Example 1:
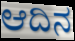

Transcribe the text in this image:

ಆದಿನ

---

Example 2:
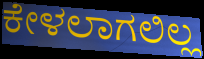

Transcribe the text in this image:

ಕೇಳಲಾಗಲಿಲ್ಲ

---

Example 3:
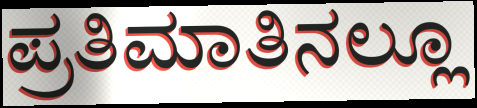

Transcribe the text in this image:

ಪ್ರತಿಮಾತಿನಲ್ಲೂ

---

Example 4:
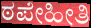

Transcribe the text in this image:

ಠಪೇಹೀತಿ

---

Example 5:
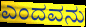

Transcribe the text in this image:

ಎಂದವನು